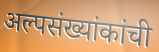
अल्पसंख्यांकांची